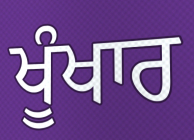
ਖੂੰਖਾਰ